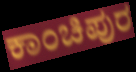
ಕಾಂಚಿಪುರ